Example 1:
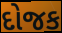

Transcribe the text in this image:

દોજક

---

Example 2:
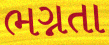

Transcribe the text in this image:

ભગ્નતા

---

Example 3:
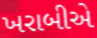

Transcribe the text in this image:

ખરાબીએ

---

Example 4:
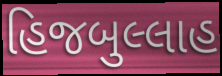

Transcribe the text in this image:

હિજબુલ્લાહ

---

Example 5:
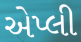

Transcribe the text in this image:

એપ્લી